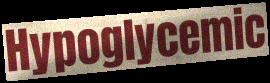
Hypoglycemic